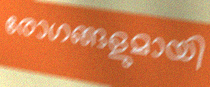
രോഗങ്ങളുമായി